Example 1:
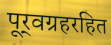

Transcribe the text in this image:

पूर्वग्रहरहित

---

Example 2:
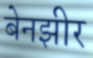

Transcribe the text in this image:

बेनझीर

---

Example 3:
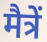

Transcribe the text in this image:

मैत्रें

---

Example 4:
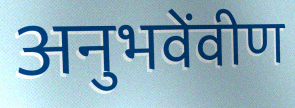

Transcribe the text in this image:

अनुभवेंवीण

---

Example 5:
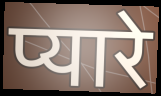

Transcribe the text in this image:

प्यारे